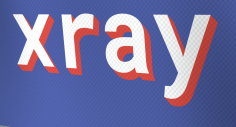
xray